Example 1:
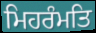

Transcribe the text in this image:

ਮਿਹਰੰਮਤਿ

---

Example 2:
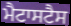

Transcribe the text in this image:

ਮੈਟਾਸਟੈਸ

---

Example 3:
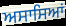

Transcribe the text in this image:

ਅਸਾਸਿਆਂ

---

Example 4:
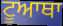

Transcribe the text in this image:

ਟੂਆਥਾ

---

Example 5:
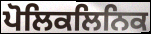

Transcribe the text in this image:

ਪੋਲਿਕਲਿਨਿਕ